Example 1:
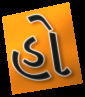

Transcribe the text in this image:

હો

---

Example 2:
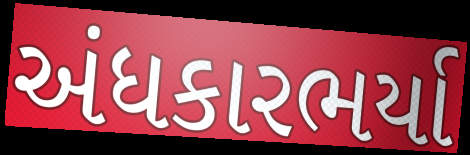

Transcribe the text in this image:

અંધકારભર્યા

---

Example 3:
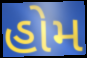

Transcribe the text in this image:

હોમ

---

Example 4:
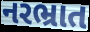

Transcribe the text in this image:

નરભ્રાત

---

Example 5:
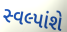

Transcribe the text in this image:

સ્વલ્પાંશે